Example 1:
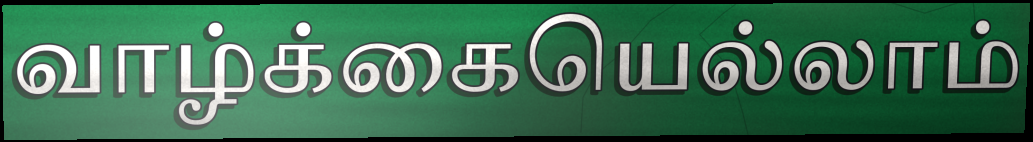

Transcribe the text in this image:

வாழ்க்கையெல்லாம்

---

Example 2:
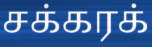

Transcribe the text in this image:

சக்கரக்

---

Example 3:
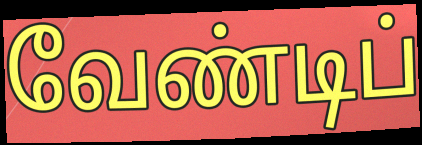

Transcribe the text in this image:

வேண்டிப்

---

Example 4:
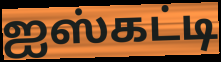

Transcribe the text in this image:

ஐஸ்கட்டி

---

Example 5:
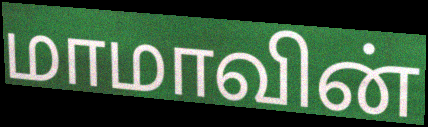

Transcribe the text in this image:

மாமாவின்